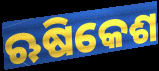
ଋଷିକେଶ